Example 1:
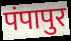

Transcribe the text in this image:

पंपापुर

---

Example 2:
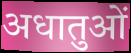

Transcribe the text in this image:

अधातुओं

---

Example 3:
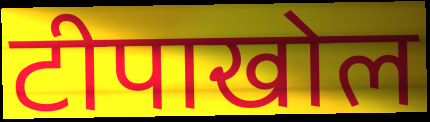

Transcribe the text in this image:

टीपाखोल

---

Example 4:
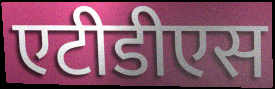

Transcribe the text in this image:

एटीडीएस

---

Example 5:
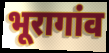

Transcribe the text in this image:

भूरागांव